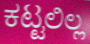
ಕಟ್ಟಲಿಲ್ಲ